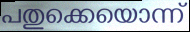
പതുക്കെയൊന്ന്